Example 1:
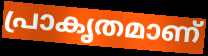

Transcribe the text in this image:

പ്രാകൃതമാണ്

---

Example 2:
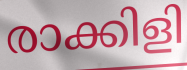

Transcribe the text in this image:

രാക്കിളി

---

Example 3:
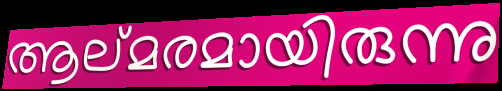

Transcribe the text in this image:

ആല്മരമായിരുന്നു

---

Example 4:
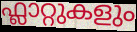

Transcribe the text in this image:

ഫ്ലാറ്റുകളും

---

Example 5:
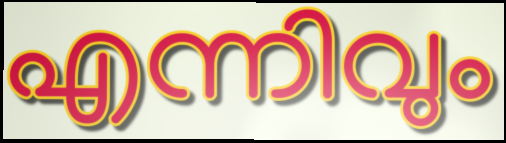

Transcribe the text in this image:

എന്നിവും